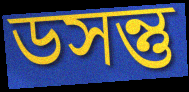
ডসন্তু